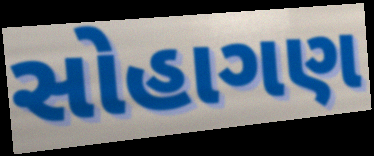
સોહાગણ